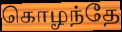
கொழந்தே